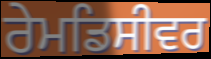
ਰੇਮਡਿਸੀਵਰ